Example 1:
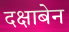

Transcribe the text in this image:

दक्षाबेन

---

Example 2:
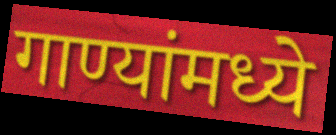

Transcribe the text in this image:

गाण्यांमध्ये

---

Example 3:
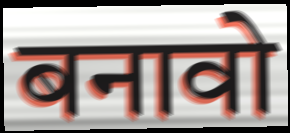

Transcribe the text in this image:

बनावो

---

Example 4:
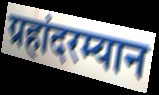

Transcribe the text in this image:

ग्रहांदरम्यान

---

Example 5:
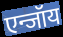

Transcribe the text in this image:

एन्जॉय